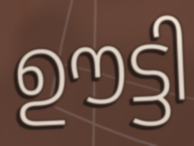
ഊട്ടി